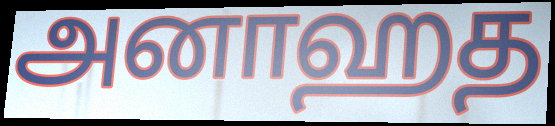
அனாஹத